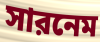
সারনেম